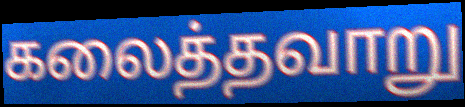
கலைத்தவாறு